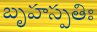
బృహస్పతిః